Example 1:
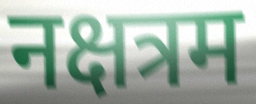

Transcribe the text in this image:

नक्षत्रम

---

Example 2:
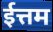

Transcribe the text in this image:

ईत्तम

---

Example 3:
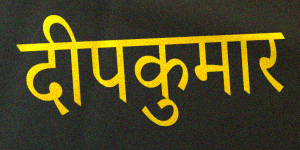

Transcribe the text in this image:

दीपकुमार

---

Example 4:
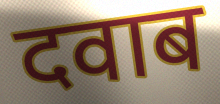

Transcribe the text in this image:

दवाब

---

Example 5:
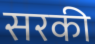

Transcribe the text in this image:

सरकी